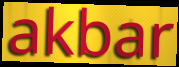
akbar